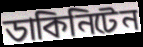
ডাকিনিটেন